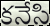
కనేసి